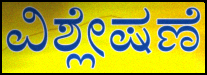
ವಿಶ್ಲೇಷಣೆ